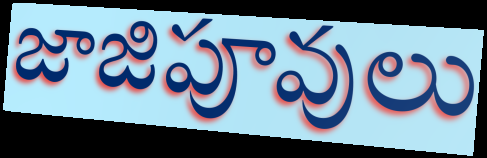
జాజిపూవులు